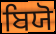
ਬਿਯੋ